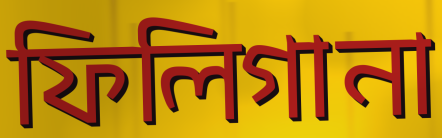
ফিলিগানা